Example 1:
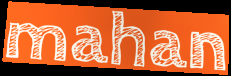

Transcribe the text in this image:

mahan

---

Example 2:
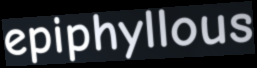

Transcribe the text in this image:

epiphyllous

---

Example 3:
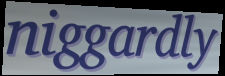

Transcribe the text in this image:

niggardly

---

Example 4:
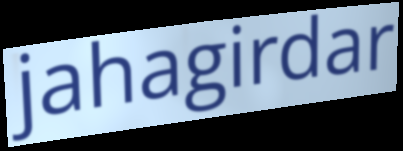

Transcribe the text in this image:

jahagirdar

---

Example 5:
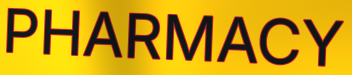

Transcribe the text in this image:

PHARMACY